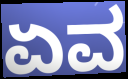
ಏವ